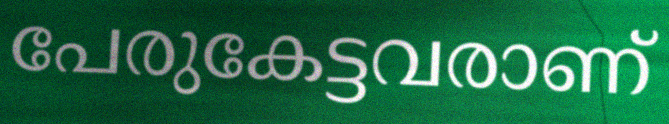
പേരുകേട്ടവരാണ്